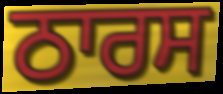
ਠਾਰਸ